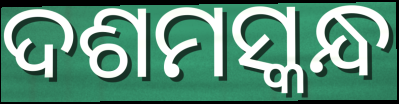
ଦଶମସ୍କନ୍ଧ